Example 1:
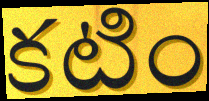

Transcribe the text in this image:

కటిం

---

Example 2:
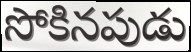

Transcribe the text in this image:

సోకినపుడు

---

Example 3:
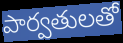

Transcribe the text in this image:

పార్వతులతో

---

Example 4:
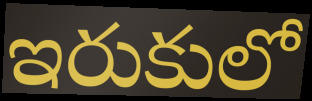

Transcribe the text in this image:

ఇరుకులో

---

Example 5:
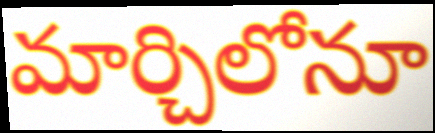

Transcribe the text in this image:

మార్చిలోనూ